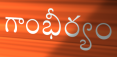
గాంభీర్యం